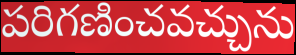
పరిగణించవచ్చును